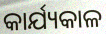
କାର୍ଯ୍ୟକାଳ